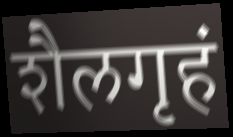
शैलगृहं